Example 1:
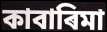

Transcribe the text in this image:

কাবাৰিমা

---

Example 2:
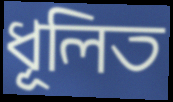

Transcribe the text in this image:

ধূলিত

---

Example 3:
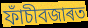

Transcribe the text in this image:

ফাঁচীবজাৰত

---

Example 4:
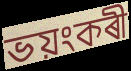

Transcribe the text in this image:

ভয়ংকৰী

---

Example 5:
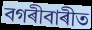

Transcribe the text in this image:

বগৰীবাৰীত